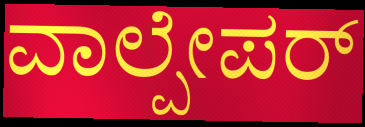
ವಾಲ್ಪೇಪರ್